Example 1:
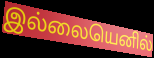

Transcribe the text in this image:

இல்லையெனில்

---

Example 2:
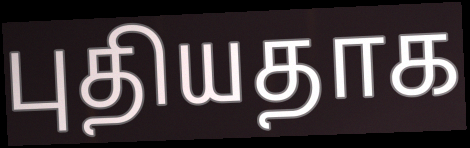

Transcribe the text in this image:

புதியதாக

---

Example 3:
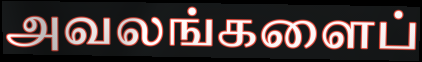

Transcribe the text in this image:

அவலங்களைப்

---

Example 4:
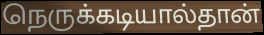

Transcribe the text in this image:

நெருக்கடியால்தான்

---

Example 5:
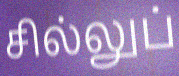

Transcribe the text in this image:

சில்லுப்